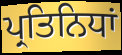
ਪ੍ਰਤਿਨਿਧਾਂ